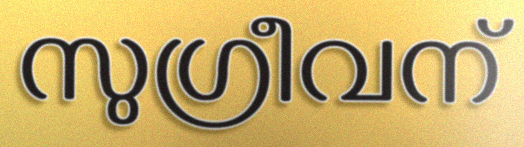
സുഗ്രീവന്